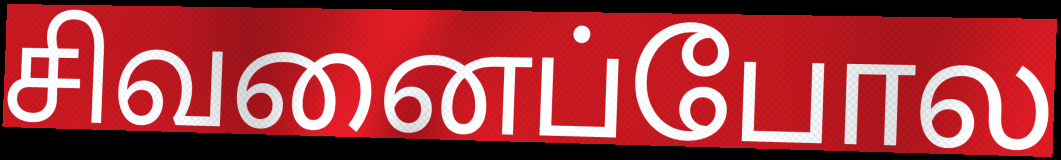
சிவனைப்போல